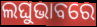
ଲଘୁଭାବରେ